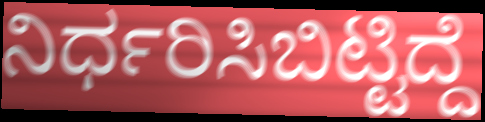
ನಿರ್ಧರಿಸಿಬಿಟ್ಟಿದ್ದೆ